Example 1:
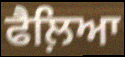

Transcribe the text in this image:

ਫੈਲ਼ਿਆ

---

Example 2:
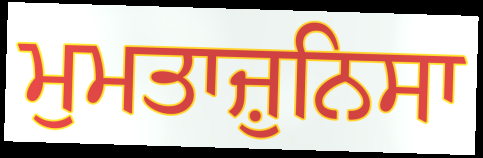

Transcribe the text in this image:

ਮੁਮਤਾਜ਼ੁਨਿਸਾ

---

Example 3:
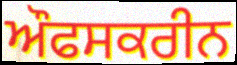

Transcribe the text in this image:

ਔਫਸਕਰੀਨ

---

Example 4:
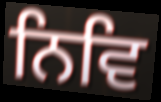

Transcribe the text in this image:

ਨਿਵਿ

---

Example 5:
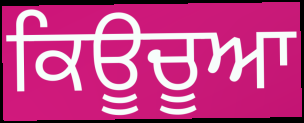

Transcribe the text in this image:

ਕਿਊਚੂਆ